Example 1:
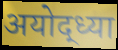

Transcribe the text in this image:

अयोद्ध्या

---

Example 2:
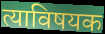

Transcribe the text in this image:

त्याविषयक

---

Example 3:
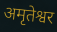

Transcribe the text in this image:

अमृतेश्वर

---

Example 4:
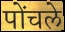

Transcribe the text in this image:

पोंचले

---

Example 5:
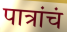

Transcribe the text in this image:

पात्रांचं